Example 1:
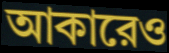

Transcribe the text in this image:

আকারেও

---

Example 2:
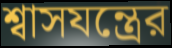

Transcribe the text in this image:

শ্বাসযন্ত্রের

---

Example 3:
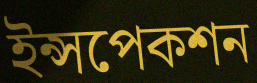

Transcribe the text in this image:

ইন্সপেকশন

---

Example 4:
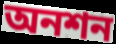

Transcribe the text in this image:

অনশন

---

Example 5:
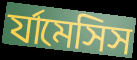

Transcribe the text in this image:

র্যামেসিস